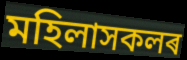
মহিলাসকলৰ